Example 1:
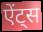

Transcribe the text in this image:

ऐंट्स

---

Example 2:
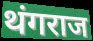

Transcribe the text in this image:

थंगराज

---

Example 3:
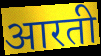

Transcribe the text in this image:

आरती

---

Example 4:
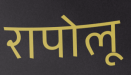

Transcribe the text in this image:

रापोलू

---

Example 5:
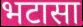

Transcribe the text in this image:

भटासा